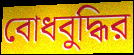
বোধবুদ্ধির